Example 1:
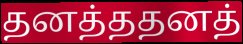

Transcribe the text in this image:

தனத்ததனத்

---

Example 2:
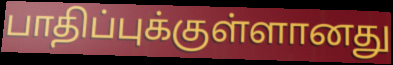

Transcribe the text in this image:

பாதிப்புக்குள்ளானது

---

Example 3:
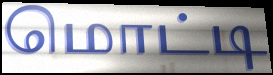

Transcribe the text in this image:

மொட்டி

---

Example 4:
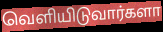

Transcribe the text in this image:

வெளியிடுவார்களா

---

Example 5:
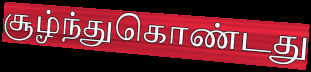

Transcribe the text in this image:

சூழ்ந்துகொண்டது